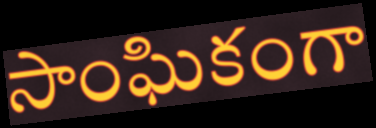
సాంఘికంగా